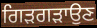
ਗਿੜਗੜਾਉਣ